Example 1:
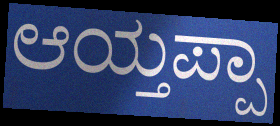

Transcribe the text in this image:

ಆಯ್ತಪ್ಪಾ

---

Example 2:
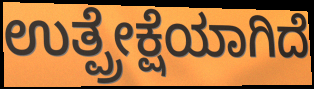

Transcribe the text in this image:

ಉತ್ಪ್ರೇಕ್ಷೆಯಾಗಿದೆ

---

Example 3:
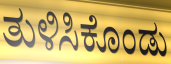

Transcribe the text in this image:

ತುಳಿಸಿಕೊಂಡು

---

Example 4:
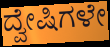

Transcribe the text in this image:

ದ್ವೇಷಿಗಳೇ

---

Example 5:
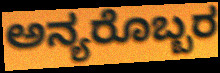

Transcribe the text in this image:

ಅನ್ಯರೊಬ್ಬರ